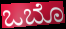
ಒಬೊ